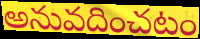
అనువదించటం